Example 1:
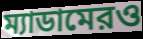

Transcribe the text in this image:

ম্যাডামেরও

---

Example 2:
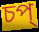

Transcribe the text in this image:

চপ্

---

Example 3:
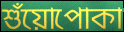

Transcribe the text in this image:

শুঁয়োপোকা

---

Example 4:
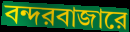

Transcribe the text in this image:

বন্দরবাজারে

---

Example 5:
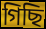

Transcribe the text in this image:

গিছি